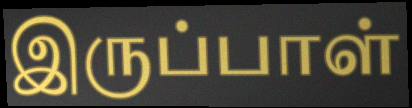
இருப்பாள்